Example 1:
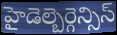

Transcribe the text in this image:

హైడెల్బెర్గెన్సిస్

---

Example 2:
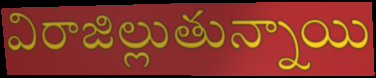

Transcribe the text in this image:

విరాజిల్లుతున్నాయి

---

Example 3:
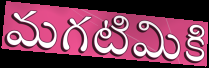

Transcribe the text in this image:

మగటిమికి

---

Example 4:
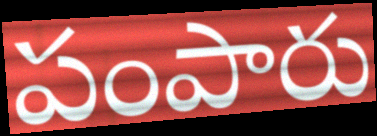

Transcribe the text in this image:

పంపారు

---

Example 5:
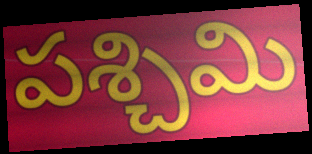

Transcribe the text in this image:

పశ్చిమి